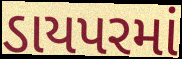
ડાયપરમાં